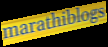
marathiblogs